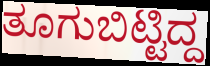
ತೂಗುಬಿಟ್ಟಿದ್ದ